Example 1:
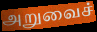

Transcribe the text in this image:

அறுவைச்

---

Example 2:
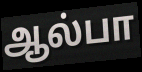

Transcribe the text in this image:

ஆல்பா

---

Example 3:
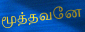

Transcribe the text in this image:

மூத்தவனே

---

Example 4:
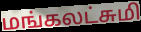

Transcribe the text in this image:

மங்கலட்சுமி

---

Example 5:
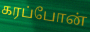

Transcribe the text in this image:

கரப்போன்